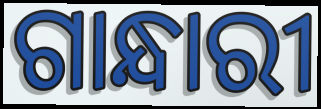
ଗାନ୍ଧାରୀ